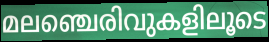
മലഞ്ചെരിവുകളിലൂടെ